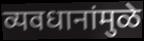
व्यवधानांमुळे